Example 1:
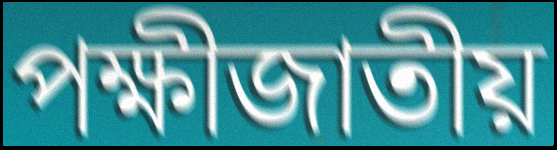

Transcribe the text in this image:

পক্ষীজাতীয়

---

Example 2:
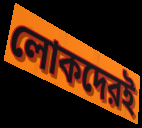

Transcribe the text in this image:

লোকদেরই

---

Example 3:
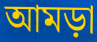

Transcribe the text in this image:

আমড়া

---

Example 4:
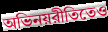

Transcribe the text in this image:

অভিনয়রীতিতেও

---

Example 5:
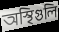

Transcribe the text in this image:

অস্থিগুলি